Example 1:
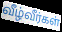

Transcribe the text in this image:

வீழ்வீர்கள்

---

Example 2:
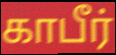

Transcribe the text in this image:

காபீர்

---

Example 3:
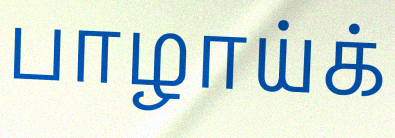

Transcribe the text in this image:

பாழாய்க்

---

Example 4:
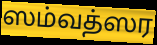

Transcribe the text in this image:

ஸம்வத்ஸர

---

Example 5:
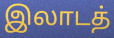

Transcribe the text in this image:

இலாடத்